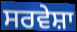
ਸਰਵੇਸ਼ਾ